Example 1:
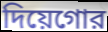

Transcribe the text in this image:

দিয়েগোর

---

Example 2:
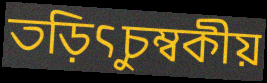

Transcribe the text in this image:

তড়িৎচুম্বকীয়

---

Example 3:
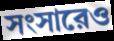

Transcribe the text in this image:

সংসারেও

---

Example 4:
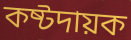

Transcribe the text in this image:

কষ্টদায়ক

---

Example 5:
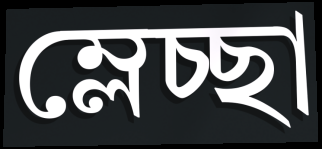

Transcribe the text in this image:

ম্লেচ্ছা